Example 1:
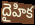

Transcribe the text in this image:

దైహిక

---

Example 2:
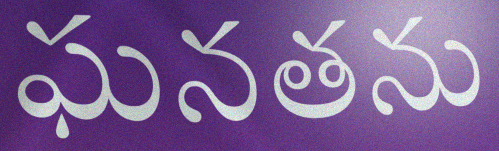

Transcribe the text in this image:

ఘనతను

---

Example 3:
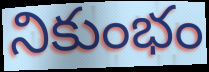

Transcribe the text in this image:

నికుంభం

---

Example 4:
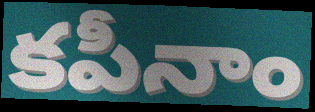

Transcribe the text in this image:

కపీనాం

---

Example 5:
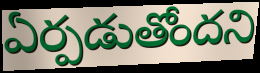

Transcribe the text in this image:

ఏర్పడుతోందని